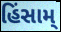
હિંસામ્